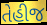
તેહીજ